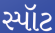
સ્પૉટ